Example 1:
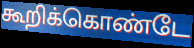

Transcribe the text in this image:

கூறிக்கொண்டே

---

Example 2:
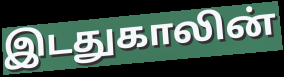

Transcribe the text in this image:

இடதுகாலின்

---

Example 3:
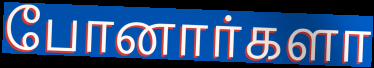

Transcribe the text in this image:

போனார்களா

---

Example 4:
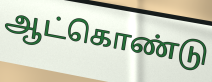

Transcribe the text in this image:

ஆட்கொண்டு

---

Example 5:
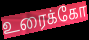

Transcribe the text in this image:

உரைக்கோ